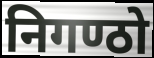
निगण्ठो